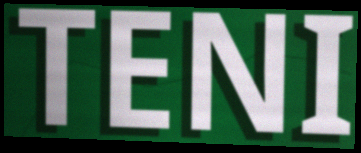
TENI